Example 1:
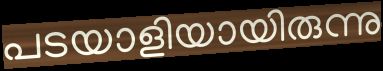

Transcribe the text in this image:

പടയാളിയായിരുന്നു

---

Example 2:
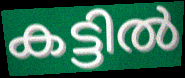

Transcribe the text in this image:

കട്ടിൽ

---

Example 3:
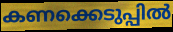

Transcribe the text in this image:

കണക്കെടുപ്പിൽ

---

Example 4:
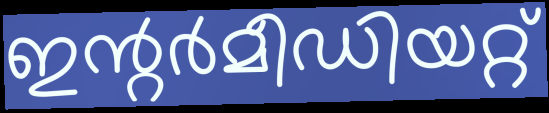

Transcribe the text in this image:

ഇന്റർമീഡിയറ്റ്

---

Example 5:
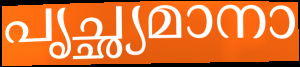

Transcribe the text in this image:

പൃച്ഛ്യമാനാ